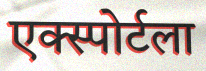
एक्स्पोर्टला